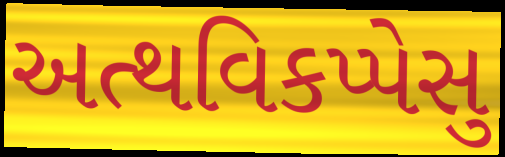
અત્થવિકપ્પેસુ